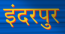
इंदरपुर